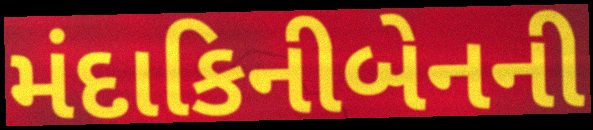
મંદાકિનીબેનની